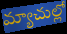
మ్యాచుల్లో